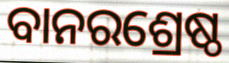
ବାନରଶ୍ରେଷ୍ଠ